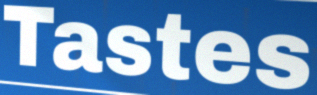
Tastes